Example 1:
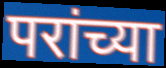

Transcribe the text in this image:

परांच्या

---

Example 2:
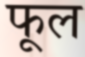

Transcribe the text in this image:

फूल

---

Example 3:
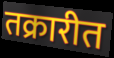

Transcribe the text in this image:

तक्रारीत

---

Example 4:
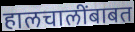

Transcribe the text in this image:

हालचालींबाबत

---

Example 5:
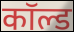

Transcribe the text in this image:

कॉल्ड